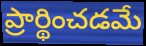
ప్రార్థించడమే